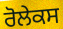
ਰੋਲੇਕਸ